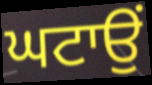
ਘਟਾਉਂ